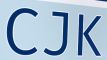
CJK